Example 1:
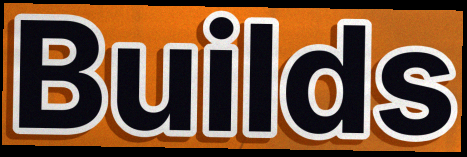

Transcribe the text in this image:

Builds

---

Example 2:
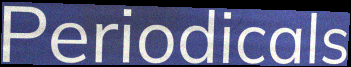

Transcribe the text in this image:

Periodicals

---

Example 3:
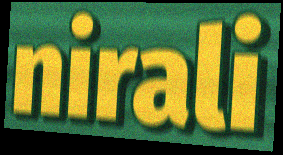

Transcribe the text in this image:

nirali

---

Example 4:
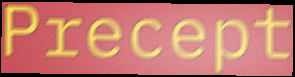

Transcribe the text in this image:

Precept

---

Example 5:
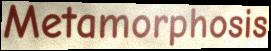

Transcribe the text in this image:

Metamorphosis